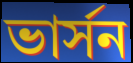
ভার্সন